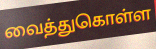
வைத்துகொள்ள